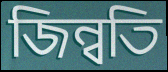
জিন্বতি